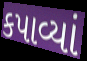
કપાવ્યાં